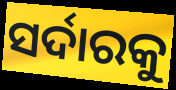
ସର୍ଦାରକୁ